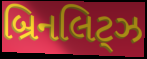
બ્રિનલિટ્ઝ